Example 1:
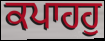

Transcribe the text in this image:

ਕਪਾਹਹੁ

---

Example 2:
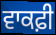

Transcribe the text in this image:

ਵਾਕਫ਼ੀ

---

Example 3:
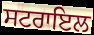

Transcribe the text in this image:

ਸਟਰਾਇਲ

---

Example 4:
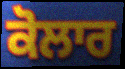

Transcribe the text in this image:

ਕੋਲਾਰ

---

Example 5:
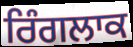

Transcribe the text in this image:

ਰਿੰਗਲਾਕ